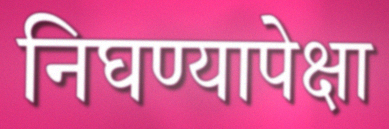
निघण्यापेक्षा